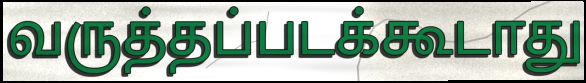
வருத்தப்படக்கூடாது